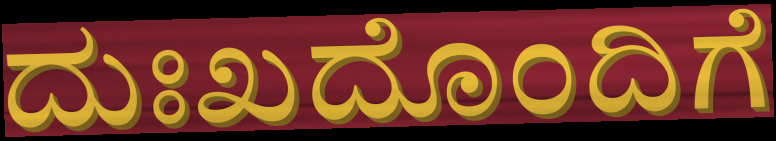
ದುಃಖದೊಂದಿಗೆ